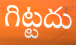
గిట్టదు